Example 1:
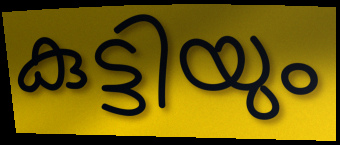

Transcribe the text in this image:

കുട്ടിയും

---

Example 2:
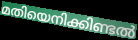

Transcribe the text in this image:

മതിയെനിക്കിണ്ടൽ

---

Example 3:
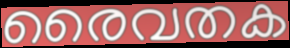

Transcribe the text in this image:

രൈവതക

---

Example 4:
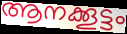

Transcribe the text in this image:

ആനക്കൂട്ടം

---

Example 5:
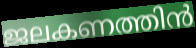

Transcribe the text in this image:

ജലകണത്തിൻ